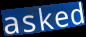
asked